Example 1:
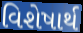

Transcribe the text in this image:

વિશેષાર્થ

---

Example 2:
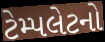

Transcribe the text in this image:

ટેમ્પલેટનો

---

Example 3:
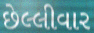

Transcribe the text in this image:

છેલ્લીવાર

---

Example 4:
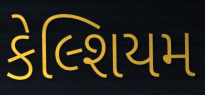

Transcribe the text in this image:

કેલ્શિયમ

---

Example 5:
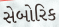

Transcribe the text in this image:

સેબોરિક